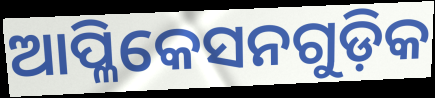
ଆପ୍ଳିକେସନଗୁଡ଼ିକ